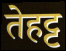
तेहट्ट